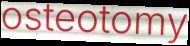
osteotomy